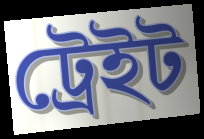
ট্রেইট